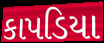
કાપડિયા